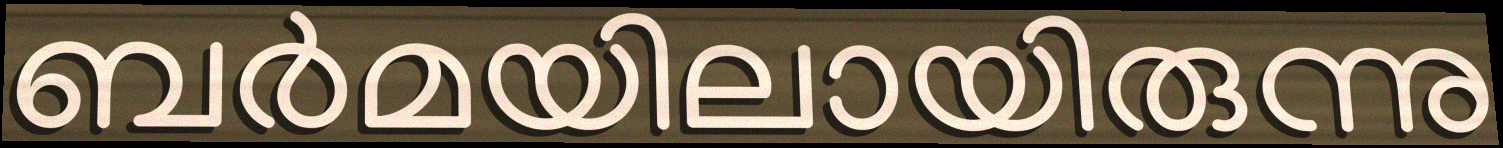
ബർമയിലായിരുന്നു